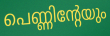
പെണ്ണിന്റേയും